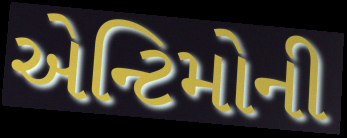
એન્ટિમોની